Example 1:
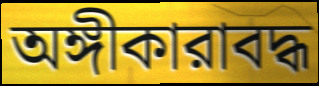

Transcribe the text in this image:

অঙ্গীকারাবদ্ধ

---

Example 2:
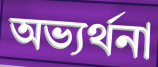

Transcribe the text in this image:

অভ্যর্থনা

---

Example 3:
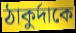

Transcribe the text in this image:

ঠাকুর্দাকে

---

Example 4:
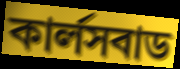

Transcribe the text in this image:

কার্লসবাড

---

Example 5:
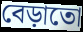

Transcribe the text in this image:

বেড়াতো